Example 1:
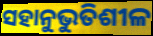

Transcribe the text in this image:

ସହାନୁଭୁତିଶୀଳ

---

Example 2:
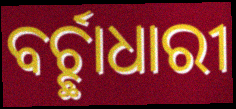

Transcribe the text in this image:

ବର୍ଚ୍ଛାଧାରୀ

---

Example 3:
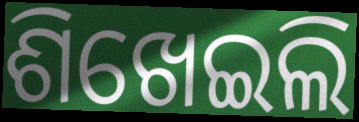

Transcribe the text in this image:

ଶିଖେଇଲି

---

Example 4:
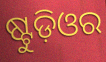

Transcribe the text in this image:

ଷ୍ଟୁଡ଼ିଓର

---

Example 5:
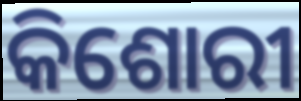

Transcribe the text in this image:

କିଶୋରୀ